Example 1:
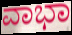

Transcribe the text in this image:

ವಾಭಾ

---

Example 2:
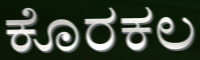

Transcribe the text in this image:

ಕೊರಕಲ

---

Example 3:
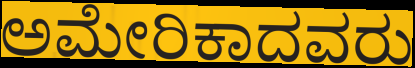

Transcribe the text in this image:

ಅಮೇರಿಕಾದವರು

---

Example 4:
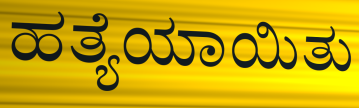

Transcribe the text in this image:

ಹತ್ಯೆಯಾಯಿತು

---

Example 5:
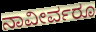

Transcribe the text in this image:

ನಾವೀರ್ವರೂ